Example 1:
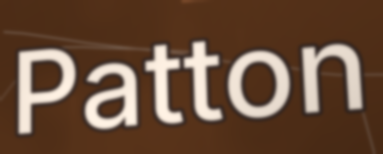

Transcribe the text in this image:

Patton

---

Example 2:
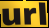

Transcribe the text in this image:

url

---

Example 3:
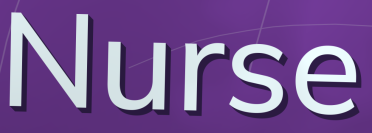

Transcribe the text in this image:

Nurse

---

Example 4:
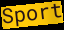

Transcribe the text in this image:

Sport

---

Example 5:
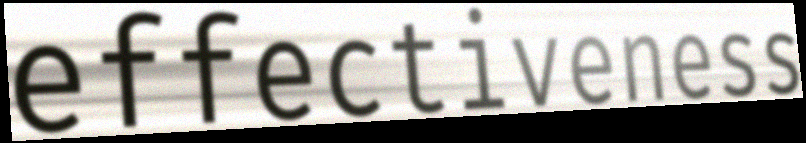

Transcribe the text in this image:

effectiveness